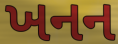
ખનન